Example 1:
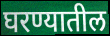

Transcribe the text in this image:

घरण्यातील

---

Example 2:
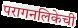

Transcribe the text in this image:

परागनलिकेची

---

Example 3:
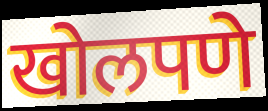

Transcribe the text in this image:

खोलपणे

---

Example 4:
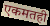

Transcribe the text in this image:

एकमतही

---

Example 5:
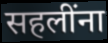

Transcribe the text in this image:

सहलींना